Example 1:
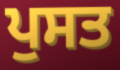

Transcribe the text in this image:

ਪੁਸਤ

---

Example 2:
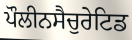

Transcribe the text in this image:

ਪੌਲੀਨਸੈਚੁਰੇਟਿਡ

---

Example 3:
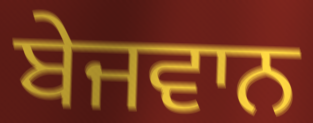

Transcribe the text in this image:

ਬੇਜਵਾਨ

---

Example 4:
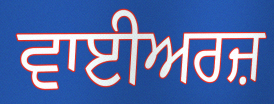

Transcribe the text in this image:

ਵਾਈਅਰਜ਼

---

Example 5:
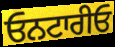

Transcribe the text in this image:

ਓਨਟਾਰੀਓ